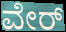
ವೇರ್